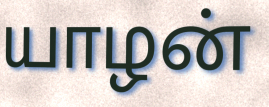
யாழன்